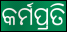
କର୍ମପ୍ରତି